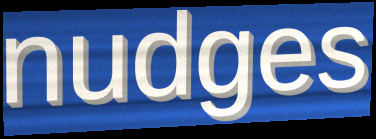
nudges